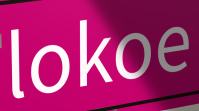
lokoe